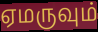
ஏமருவும்